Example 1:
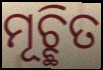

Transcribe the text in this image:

ମୂଚ୍ଛିତ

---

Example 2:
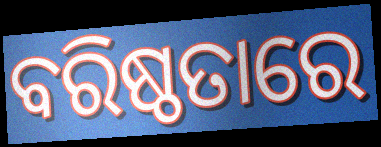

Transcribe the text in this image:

ବରିଷ୍ଠତାରେ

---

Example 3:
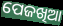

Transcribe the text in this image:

ପେଜଖିଆ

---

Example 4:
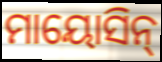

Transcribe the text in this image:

ମାୟୋସିନ୍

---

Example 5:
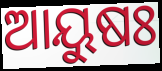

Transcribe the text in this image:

ଆୟୁଷଃ